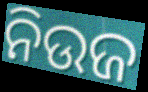
ନିଉଜ